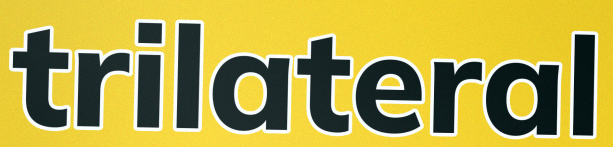
trilateral